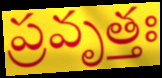
ప్రవృత్తః